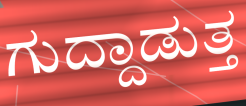
ಗುದ್ದಾಡುತ್ತ